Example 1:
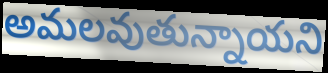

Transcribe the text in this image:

అమలవుతున్నాయని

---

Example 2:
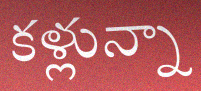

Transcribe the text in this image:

కళ్లున్నా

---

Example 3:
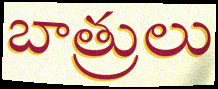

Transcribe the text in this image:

బాత్రులు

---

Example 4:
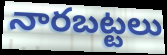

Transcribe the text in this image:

నారబట్టలు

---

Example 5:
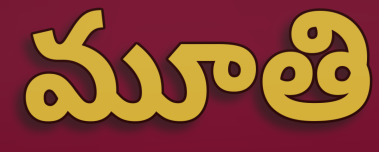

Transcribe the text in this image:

మూతి